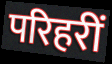
परिहरीं